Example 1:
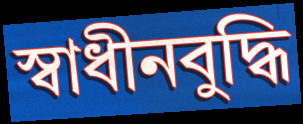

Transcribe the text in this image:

স্বাধীনবুদ্ধি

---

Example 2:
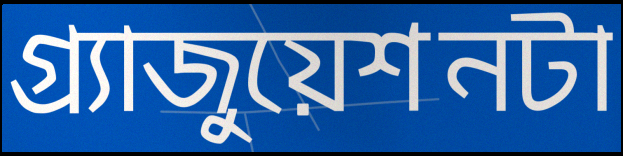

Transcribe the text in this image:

গ্র্যাজুয়েশনটা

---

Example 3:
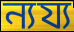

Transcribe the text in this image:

ন্যয্য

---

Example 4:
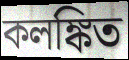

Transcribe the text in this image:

কলঙ্কিত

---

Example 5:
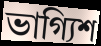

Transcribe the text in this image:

ভাগ্যিশ